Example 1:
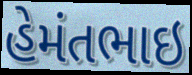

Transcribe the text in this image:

હેમંતભાઇ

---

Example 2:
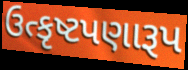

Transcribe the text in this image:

ઉત્કૃષ્ટપણારૂપ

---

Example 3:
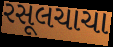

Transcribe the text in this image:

રસૂલચાચા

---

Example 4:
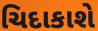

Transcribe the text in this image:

ચિદાકાશે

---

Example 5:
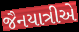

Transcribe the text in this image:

જૈનયાત્રીએ